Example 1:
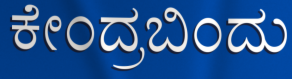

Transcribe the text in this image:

ಕೇಂದ್ರಬಿಂದು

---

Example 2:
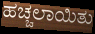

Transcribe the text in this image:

ಹಚ್ಚಲಾಯಿತು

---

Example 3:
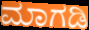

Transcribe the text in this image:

ಮಾಗಡಿ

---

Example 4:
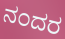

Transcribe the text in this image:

ನಂದರ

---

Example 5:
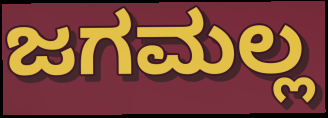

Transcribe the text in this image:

ಜಗಮಲ್ಲ